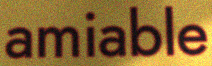
amiable